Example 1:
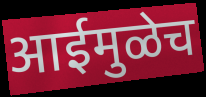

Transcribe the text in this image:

आईमुळेच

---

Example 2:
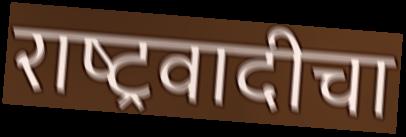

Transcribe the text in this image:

राष्ट्रवादीचा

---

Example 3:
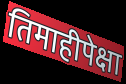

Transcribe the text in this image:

तिमाहीपेक्षा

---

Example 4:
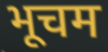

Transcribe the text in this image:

भूचम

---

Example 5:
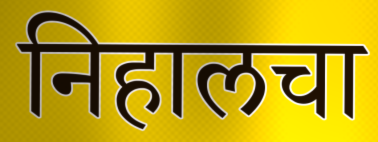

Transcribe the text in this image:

निहालचा